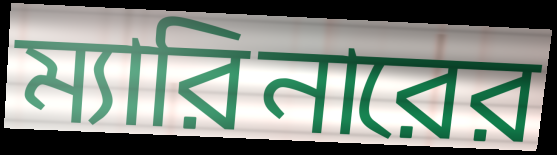
ম্যারিনারের